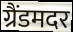
ग्रैंडमदर